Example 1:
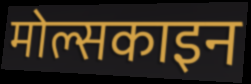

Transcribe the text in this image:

मोल्सकाइन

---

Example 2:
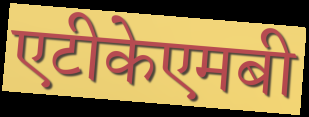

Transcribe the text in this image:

एटीकेएमबी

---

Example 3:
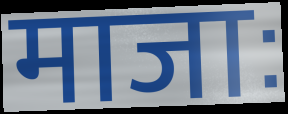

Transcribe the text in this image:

माजाः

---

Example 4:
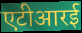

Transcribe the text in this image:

एटीआरई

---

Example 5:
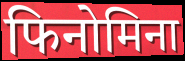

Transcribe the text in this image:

फिनोमिना